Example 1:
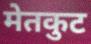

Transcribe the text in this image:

मेतकुट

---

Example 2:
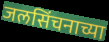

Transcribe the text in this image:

जलसिंचनाच्या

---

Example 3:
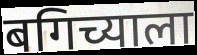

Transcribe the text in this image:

बगिच्याला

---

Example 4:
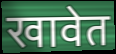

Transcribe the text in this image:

खावेत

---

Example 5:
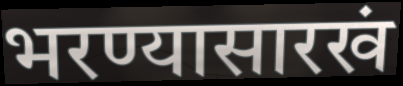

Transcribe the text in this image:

भरण्यासारखं